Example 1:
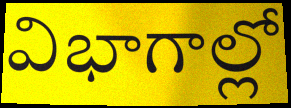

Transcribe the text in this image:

విభాగాల్లో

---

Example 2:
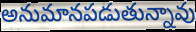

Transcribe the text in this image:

అనుమానపడుతున్నావు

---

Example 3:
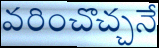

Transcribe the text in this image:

వరించొచ్చనే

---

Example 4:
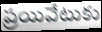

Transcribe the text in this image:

ప్రయివేటుకు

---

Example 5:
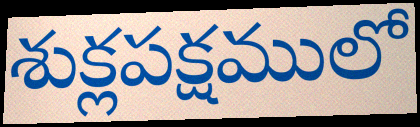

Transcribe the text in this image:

శుక్లపక్షములో